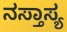
ನಸ್ತಾಸ್ಯ